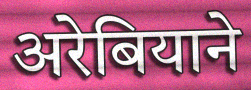
अरेबियाने